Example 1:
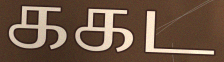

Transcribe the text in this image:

ககட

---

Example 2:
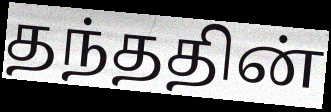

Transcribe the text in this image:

தந்ததின்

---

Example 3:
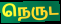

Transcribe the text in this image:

நெருட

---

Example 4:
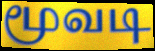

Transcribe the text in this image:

மூவடி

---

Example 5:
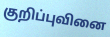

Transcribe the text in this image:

குறிப்புவினை